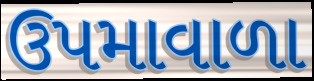
ઉપમાવાળા